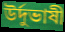
উর্দুভাষী